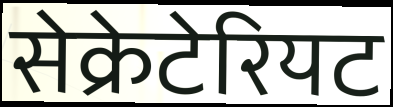
सेक्रेटेरियट